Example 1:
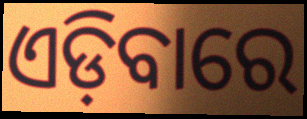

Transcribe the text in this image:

ଏଡ଼ିବାରେ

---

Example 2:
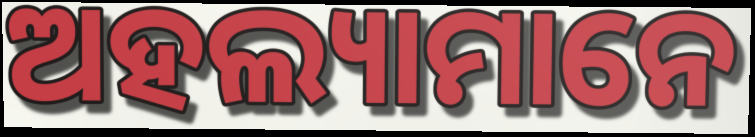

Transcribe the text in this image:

ଅହଲ୍ୟାମାନେ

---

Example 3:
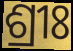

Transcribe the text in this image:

ଶ୍ରୀଃ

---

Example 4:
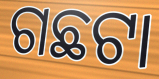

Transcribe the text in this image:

ଗଛଟା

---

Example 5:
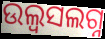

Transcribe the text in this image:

ଉଲ୍ୱସଲଗ୍ନ